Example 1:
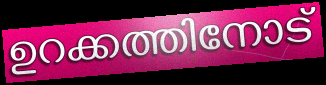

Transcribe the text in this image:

ഉറക്കത്തിനോട്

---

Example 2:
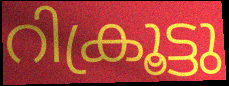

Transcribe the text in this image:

റിക്രൂട്ടു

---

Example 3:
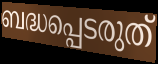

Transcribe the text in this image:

ബദ്ധപ്പെടരുത്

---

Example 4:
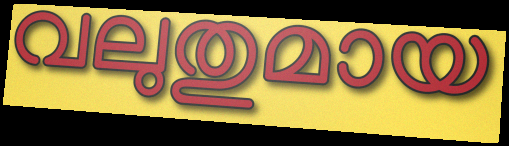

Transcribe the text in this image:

വലുതുമായ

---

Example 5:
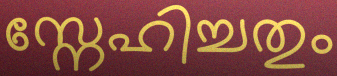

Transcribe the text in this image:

സ്നേഹിച്ചതും